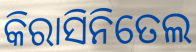
କିରାସିନିତେଲ